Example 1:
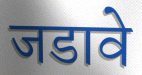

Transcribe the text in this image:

जडावे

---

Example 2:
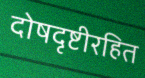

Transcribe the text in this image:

दोषदृष्टीरहित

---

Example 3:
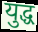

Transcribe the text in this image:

युद्ध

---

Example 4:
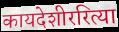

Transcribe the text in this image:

कायदेशीररित्या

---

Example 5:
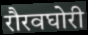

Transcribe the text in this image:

रौरवघोरी